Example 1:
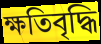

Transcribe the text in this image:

ক্ষতিবৃদ্ধি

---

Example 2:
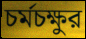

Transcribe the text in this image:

চর্মচক্ষুর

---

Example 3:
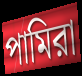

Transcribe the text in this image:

পামিরা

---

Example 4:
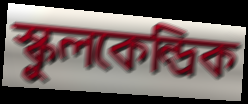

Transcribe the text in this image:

স্কুলকেন্দ্রিক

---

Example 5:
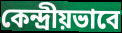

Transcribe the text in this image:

কেন্দ্রীয়ভাবে